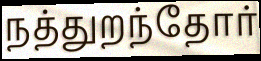
நத்துறந்தோர்